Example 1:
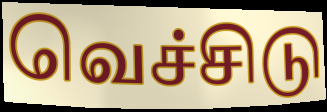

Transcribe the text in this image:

வெச்சிடு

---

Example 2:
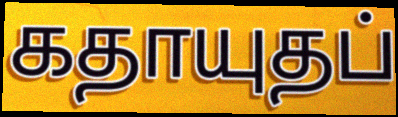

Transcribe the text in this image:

கதாயுதப்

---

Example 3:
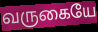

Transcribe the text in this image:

வருகையே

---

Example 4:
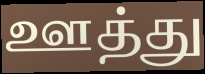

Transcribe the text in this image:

ஊத்து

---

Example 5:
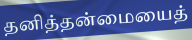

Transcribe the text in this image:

தனித்தன்மையைத்